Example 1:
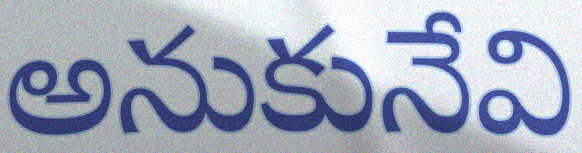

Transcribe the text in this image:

అనుకునేవి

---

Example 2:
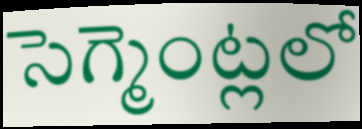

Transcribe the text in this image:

సెగ్మెంట్లలో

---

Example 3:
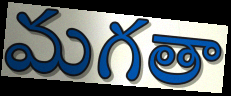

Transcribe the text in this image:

మగతా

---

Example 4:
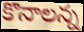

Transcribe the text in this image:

కొనాలన్న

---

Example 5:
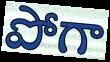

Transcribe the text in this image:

పోగా